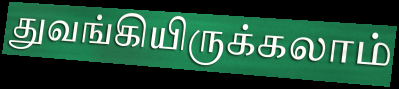
துவங்கியிருக்கலாம்